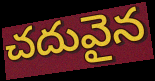
చదువైన